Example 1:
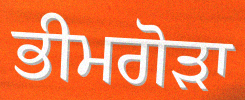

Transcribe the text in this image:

ਭੀਮਗੋੜਾ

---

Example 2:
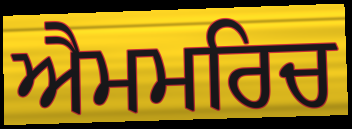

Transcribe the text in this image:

ਐਮਮਰਿਚ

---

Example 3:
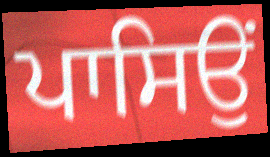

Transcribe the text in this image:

ਪਾਸਿਉਂ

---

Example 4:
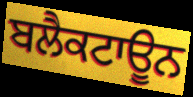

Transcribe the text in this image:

ਬਲੈਕਟਾਊਨ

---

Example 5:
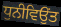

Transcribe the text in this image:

ਧੁਨੀਵਿਉਂਤ